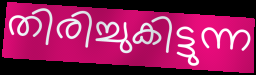
തിരിച്ചുകിട്ടുന്ന